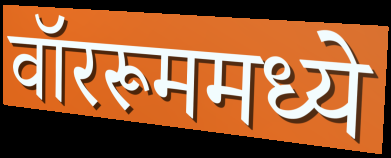
वॉररूममध्ये